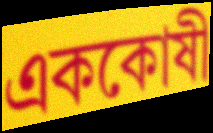
এককোষী